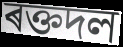
ৰক্তদল